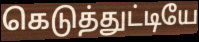
கெடுத்துட்டியே